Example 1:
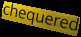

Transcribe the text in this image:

chequered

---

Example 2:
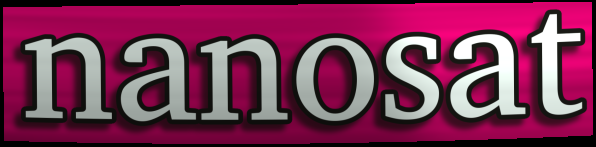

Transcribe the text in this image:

nanosat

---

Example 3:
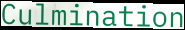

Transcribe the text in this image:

Culmination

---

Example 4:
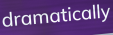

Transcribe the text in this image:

dramatically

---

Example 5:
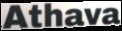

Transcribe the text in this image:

Athava